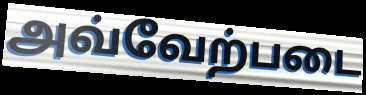
அவ்வேற்படை